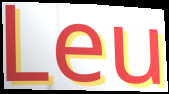
Leu